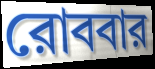
রোববার